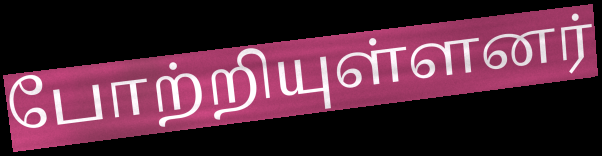
போற்றியுள்ளனர்